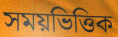
সময়ভিত্তিক